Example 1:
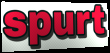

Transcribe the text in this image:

spurt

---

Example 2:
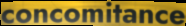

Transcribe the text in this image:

concomitance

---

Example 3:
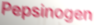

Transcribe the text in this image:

Pepsinogen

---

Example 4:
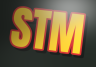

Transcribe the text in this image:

STM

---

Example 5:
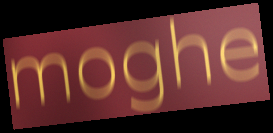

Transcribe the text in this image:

moghe